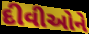
દીવીઓને